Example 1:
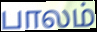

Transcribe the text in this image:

பாலம்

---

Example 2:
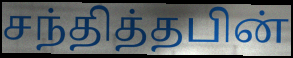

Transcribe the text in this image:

சந்தித்தபின்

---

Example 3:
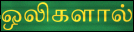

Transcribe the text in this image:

ஒலிகளால்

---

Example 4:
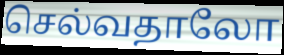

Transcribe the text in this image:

செல்வதாலோ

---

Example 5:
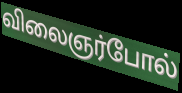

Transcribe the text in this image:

விலைஞர்போல்